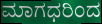
ಮಾಗಧರಿಂದ